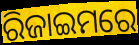
ରିଜାଇମରେ